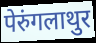
पेरुंगलाथुर